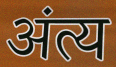
अंत्य